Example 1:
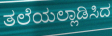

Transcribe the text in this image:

ತಲೆಯಲ್ಲಾಡಿಸಿದ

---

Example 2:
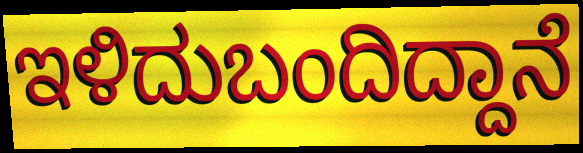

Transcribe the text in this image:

ಇಳಿದುಬಂದಿದ್ದಾನೆ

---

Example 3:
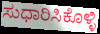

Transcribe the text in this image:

ಸುಧಾರಿಸಿಕೊಳ್ಳಿ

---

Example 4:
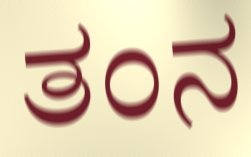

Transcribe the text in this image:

ತಂನ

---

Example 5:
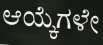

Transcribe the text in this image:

ಆಯ್ಕೆಗಳೇ